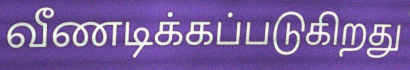
வீணடிக்கப்படுகிறது